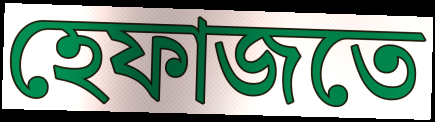
হেফাজতে